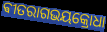
ଵୀତରାଗଭୟକ୍ରୋଧା